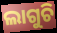
ଲାଗୁଚି